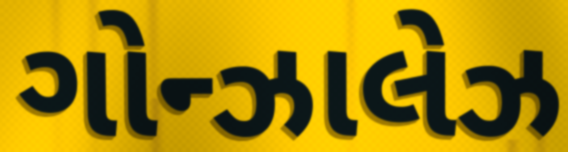
ગોન્ઝાલેઝ